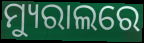
ମ୍ୟୁରାଲରେ